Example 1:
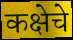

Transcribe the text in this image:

कक्षेचे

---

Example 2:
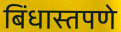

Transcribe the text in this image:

बिंधास्तपणे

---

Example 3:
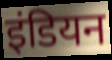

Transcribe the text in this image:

इंडियन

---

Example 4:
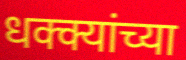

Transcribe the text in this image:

धक्क्यांच्या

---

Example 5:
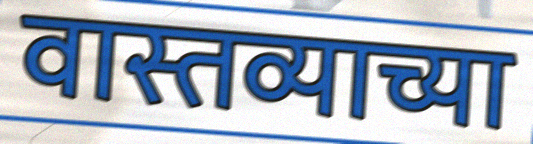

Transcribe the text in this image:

वास्तव्याच्या